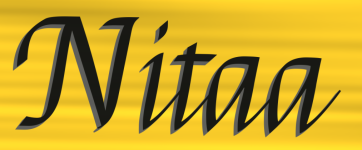
Nitaa